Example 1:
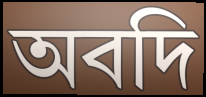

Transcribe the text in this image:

অবদি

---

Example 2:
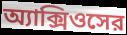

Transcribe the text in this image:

অ্যাক্সিওসের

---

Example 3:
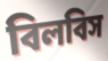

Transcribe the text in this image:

বিলবিস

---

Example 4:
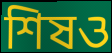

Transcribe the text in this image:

শিষও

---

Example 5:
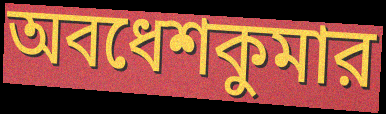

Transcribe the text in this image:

অবধেশকুমার